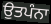
ਉਤਪੰਨਾ